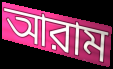
আরাম